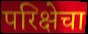
परिक्षेचा